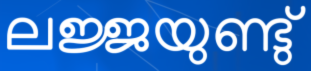
ലജ്ജയുണ്ടു്